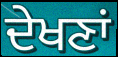
ਦੇਖਣਾਂ